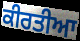
ਕੀਰਤੀਆ